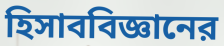
হিসাববিজ্ঞানের